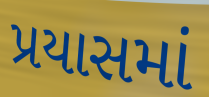
પ્રયાસમાં